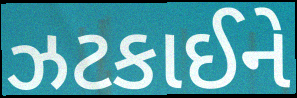
ઝટકાઈને